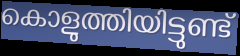
കൊളുത്തിയിട്ടുണ്ട്